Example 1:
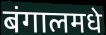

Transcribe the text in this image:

बंगालमधे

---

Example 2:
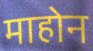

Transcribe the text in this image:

माहोन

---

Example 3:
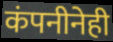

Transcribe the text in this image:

कंपनीनेही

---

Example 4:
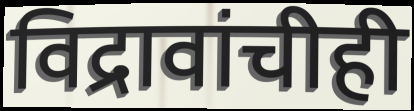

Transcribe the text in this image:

विद्रावांचीही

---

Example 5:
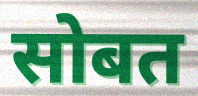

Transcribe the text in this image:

सोबत